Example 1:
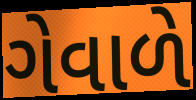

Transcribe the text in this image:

ગેવાળે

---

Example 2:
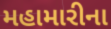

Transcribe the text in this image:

મહામારીના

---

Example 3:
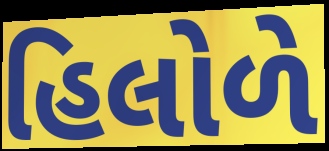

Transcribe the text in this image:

હિલોળે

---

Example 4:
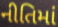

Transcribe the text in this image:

નીતિમાં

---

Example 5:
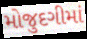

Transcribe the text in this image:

મોજુદગીમાં